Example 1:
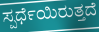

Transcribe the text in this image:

ಸ್ಪರ್ಧೆಯಿರುತ್ತದೆ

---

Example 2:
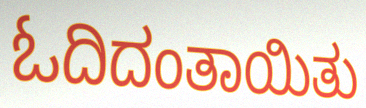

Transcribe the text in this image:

ಓದಿದಂತಾಯಿತು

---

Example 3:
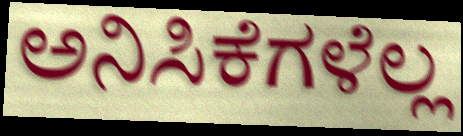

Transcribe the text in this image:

ಅನಿಸಿಕೆಗಳೆಲ್ಲ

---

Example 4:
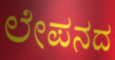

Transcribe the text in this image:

ಲೇಪನದ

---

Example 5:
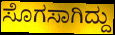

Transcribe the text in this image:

ಸೊಗಸಾಗಿದ್ದು